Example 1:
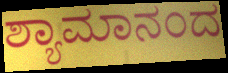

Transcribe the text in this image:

ಶ್ಯಾಮಾನಂದ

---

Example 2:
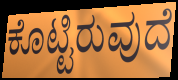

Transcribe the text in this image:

ಕೊಟ್ಟಿರುವುದೆ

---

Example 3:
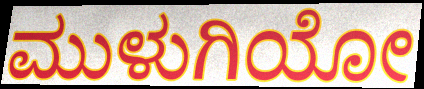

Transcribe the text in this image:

ಮುಳುಗಿಯೋ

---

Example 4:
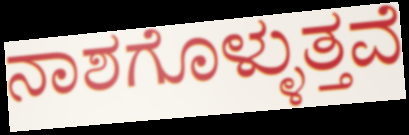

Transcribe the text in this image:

ನಾಶಗೊಳ್ಳುತ್ತವೆ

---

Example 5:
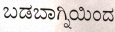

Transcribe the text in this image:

ಬಡಬಾಗ್ನಿಯಿಂದ